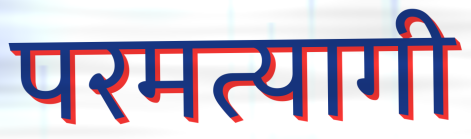
परमत्यागी